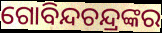
ଗୋବିନ୍ଦଚନ୍ଦ୍ରଙ୍କର